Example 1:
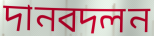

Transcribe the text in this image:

দানবদলন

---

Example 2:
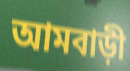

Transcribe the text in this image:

আমবাড়ী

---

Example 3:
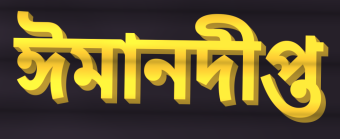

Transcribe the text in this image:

ঈমানদীপ্ত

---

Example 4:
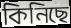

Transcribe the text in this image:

কিনিছে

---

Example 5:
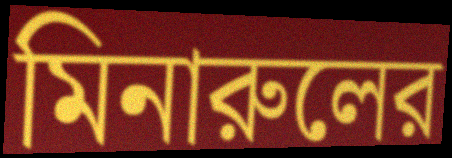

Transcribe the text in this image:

মিনারুলের